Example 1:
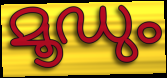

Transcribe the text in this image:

മൂഡും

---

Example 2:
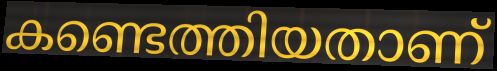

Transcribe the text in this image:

കണ്ടെത്തിയതാണ്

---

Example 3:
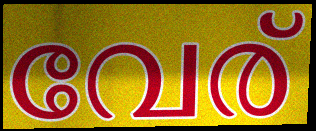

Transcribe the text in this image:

വേര്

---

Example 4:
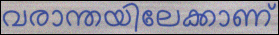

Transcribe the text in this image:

വരാന്തയിലേക്കാണ്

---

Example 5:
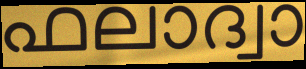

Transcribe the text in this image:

ഫലാദ്വാ